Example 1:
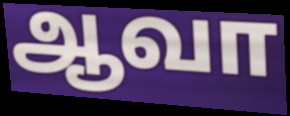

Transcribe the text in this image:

ஆவா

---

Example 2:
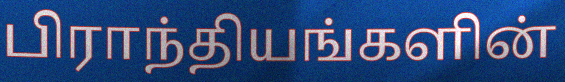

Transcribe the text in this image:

பிராந்தியங்களின்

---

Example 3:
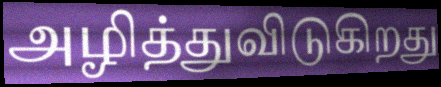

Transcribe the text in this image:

அழித்துவிடுகிறது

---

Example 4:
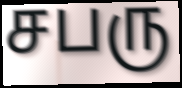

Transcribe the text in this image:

சபரு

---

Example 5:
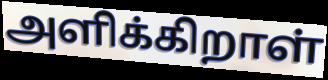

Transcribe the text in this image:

அளிக்கிறாள்